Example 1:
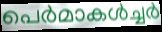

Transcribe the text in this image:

പെർമാകൾച്ചർ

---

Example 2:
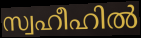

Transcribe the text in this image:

സ്വഹീഹിൽ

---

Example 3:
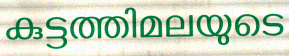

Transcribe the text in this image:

കുട്ടത്തിമലയുടെ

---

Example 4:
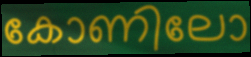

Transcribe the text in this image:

കോണിലോ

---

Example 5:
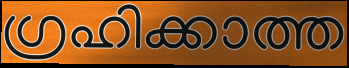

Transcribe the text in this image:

ഗ്രഹിക്കാത്ത